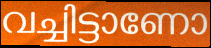
വച്ചിട്ടാണോ